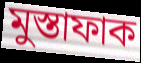
মুস্তাফাক